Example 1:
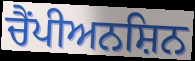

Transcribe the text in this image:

ਚੈਂਪੀਅਨਸ਼ਿਨ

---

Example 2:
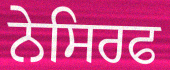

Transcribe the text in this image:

ਨੇਸਿਰਫ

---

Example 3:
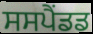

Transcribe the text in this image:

ਸਸਪੈਂਡਡ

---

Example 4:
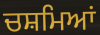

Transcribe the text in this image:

ਚਸ਼ਮਿਆਂ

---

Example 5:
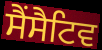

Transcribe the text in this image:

ਸੈਂਸੈਟਿਵ